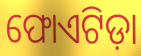
ଫୋଏଟିଡ଼ା